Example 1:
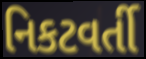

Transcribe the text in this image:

નિકટવર્તી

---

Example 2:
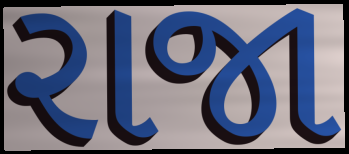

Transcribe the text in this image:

રાજા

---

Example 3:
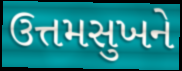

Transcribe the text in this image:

ઉત્તમસુખને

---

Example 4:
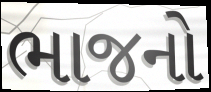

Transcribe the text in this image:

ભાજનો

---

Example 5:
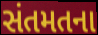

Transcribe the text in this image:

સંતમતના